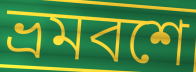
ভ্রমবশে